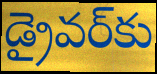
డ్రైవర్‌కు